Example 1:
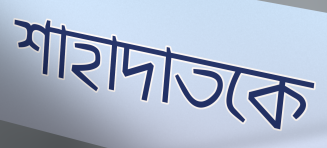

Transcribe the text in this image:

শাহাদাতকে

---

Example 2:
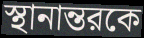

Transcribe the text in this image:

স্থানান্তরকে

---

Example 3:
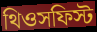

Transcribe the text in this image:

থিওসফিস্ট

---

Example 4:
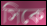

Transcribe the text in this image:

সিকে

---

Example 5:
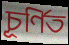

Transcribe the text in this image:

চূর্ণিত